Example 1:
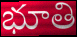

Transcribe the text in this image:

భూతి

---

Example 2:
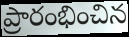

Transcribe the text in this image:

ప్రారంభించిన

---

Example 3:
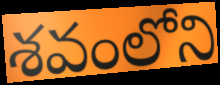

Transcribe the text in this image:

శవంలోని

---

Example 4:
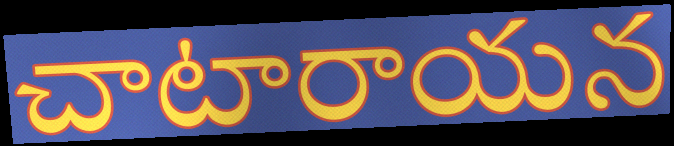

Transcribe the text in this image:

చాటారాయన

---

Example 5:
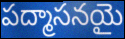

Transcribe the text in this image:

పద్మాసనయై